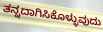
ತನ್ನದಾಗಿಸಿಕೊಳ್ಳುವುದು